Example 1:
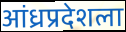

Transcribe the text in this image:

आंध्रप्रदेशला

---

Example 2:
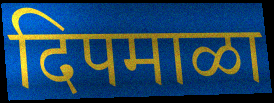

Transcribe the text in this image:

दिपमाळा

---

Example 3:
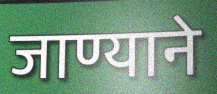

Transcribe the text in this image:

जाण्याने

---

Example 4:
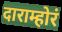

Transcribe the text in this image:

दाराम्होरं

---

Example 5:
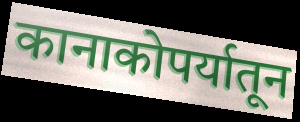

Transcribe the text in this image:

कानाकोपर्यातून